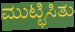
ಮುಟ್ಟಿಸಿತು